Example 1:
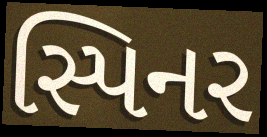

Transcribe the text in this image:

સ્પિનર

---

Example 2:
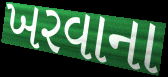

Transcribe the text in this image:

ખરવાના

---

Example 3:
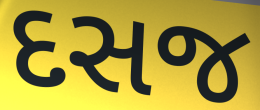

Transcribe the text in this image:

દસજ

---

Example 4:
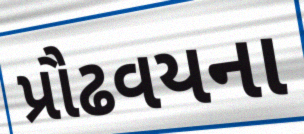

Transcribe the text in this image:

પ્રૌઢવયના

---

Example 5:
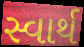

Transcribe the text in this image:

સ્વાર્થ